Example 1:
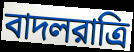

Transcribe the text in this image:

বাদলরাত্রি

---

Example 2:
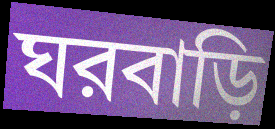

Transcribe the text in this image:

ঘরবাড়ি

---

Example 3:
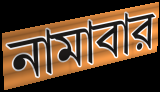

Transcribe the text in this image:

নামাবার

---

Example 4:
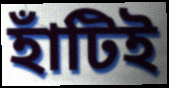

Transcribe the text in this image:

হাঁটিই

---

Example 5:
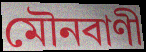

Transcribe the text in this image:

মৌনবাণী